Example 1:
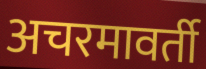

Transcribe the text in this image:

अचरमावर्ती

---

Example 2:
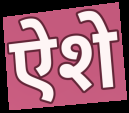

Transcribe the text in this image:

ऐशे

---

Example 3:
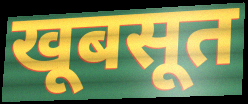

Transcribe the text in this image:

खूबसूत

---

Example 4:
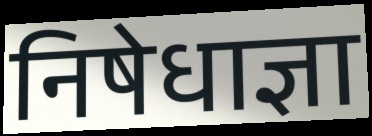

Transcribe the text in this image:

निषेधाज्ञा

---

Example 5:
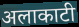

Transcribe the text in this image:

अलाकाटी